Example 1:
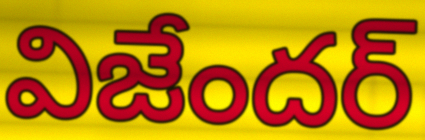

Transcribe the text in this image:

విజేందర్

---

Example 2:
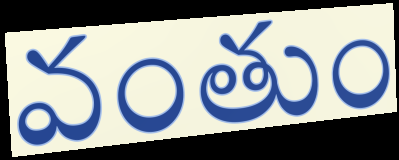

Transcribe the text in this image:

వంతుం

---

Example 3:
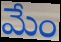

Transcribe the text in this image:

మేం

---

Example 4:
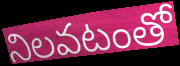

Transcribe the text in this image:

నిలవటంతో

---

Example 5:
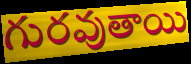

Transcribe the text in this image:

గురవుతాయి